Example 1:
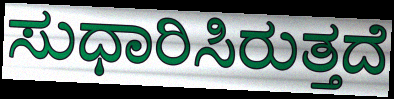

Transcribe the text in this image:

ಸುಧಾರಿಸಿರುತ್ತದೆ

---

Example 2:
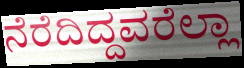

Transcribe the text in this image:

ನೆರೆದಿದ್ದವರೆಲ್ಲಾ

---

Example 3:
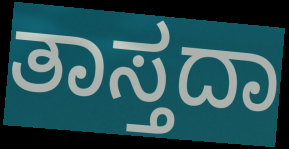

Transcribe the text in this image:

ತಾಸ್ತದಾ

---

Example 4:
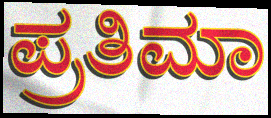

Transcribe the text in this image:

ಪ್ರತಿಮಾ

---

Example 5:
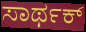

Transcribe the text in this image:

ಸಾರ್ಥಕ್